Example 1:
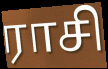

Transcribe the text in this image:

ராசி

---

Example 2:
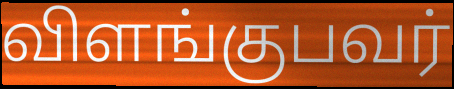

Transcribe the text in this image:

விளங்குபவர்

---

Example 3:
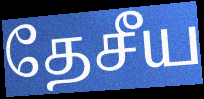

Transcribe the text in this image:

தேசீய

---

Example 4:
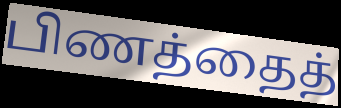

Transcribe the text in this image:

பிணத்தைத்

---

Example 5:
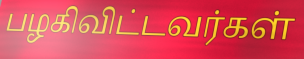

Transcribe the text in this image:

பழகிவிட்டவர்கள்